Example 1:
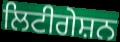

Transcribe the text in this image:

ਲਿਟੀਗੇਸ਼ਨ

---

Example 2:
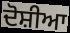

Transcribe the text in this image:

ਦੋਸ਼ੀਆ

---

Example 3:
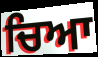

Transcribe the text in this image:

ਚਿਆ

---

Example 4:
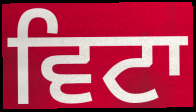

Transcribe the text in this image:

ਵਿਟਾ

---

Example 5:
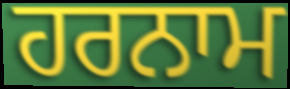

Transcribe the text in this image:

ਹਰਨਾਮ